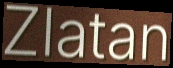
Zlatan